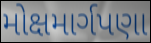
મોક્ષમાર્ગપણા